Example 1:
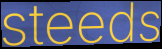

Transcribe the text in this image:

steeds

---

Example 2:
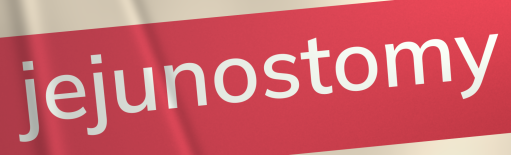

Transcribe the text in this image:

jejunostomy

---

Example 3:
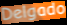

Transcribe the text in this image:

Delgado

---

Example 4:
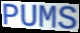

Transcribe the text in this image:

PUMS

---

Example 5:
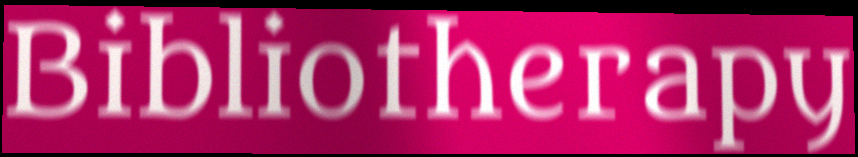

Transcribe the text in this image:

Bibliotherapy